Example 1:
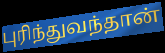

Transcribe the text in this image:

புரிந்துவந்தான்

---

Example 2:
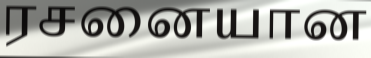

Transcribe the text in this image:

ரசனையான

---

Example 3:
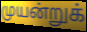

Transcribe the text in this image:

முயன்றுக்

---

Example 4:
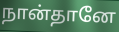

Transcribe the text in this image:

நான்தானே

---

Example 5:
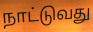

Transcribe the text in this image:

நாட்டுவது